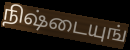
நிஷ்டையுங்